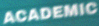
ACADEMIC